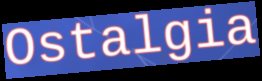
Ostalgia